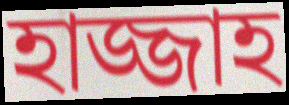
হাজ্জাহ